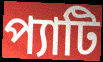
প্যাটি